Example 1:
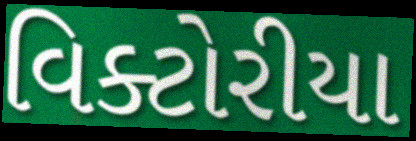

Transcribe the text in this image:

વિક્ટોરીયા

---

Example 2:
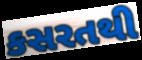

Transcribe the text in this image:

કસરતથી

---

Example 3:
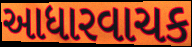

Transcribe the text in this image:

આધારવાચક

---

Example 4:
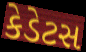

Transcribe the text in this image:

કેડેટસ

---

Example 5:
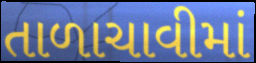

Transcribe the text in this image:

તાળાચાવીમાં